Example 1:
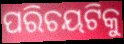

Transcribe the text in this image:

ପରିଚୟଟିକୁ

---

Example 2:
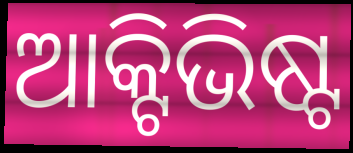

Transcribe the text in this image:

ଆକ୍ଟିଭିଷ୍ଟ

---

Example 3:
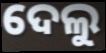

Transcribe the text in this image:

ଦେଲୁ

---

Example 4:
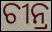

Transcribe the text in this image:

ଚୀନ୍ର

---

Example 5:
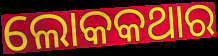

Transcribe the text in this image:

ଲୋକକଥାର